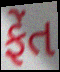
ફેંત